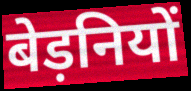
बेड़नियों